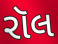
રૉલ